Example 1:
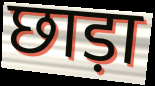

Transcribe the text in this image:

छाड़ा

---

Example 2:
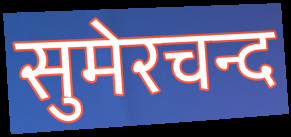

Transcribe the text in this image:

सुमेरचन्द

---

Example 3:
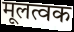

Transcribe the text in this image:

मूलत्वक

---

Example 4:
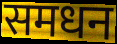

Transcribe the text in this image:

समधन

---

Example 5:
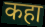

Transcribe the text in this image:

कहा